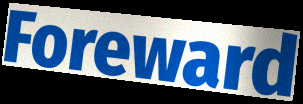
Foreward